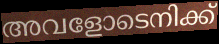
അവളോടെനിക്ക്